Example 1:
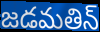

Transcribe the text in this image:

జడమతిన్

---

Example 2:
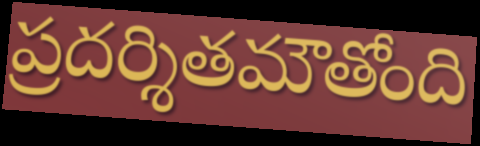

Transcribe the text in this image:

ప్రదర్శితమౌతోంది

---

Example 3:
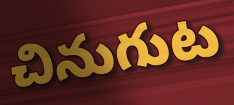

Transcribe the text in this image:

చినుగుట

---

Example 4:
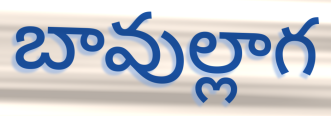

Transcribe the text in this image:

బావుల్లాగ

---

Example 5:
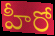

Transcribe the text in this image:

హీరో